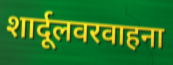
शार्दूलवरवाहना